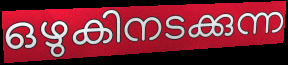
ഒഴുകിനടക്കുന്ന